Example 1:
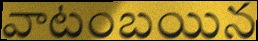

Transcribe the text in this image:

వాటంబయిన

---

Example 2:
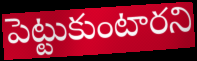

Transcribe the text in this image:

పెట్టుకుంటారని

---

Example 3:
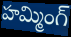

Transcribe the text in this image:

హమ్మింగ్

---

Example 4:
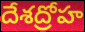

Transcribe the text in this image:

దేశద్రోహ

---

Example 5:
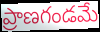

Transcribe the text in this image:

ప్రాణగండమే